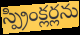
స్ప్రింక్లర్లను